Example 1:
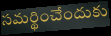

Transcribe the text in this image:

సమర్థించేందుకు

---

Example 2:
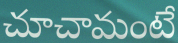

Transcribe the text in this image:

చూచామంటే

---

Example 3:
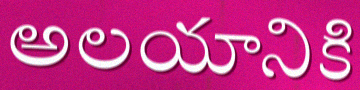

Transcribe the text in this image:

అలయానికి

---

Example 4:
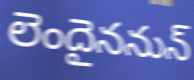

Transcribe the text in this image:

లెందైననున్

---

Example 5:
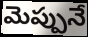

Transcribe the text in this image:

మెప్పునే